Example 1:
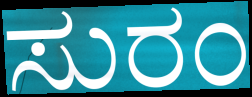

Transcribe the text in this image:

ಸುರಂ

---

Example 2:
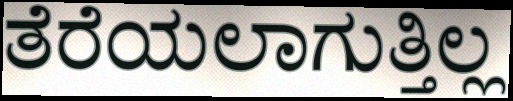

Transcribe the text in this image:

ತೆರೆಯಲಾಗುತ್ತಿಲ್ಲ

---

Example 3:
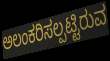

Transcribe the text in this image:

ಅಲಂಕರಿಸಲ್ಪಟ್ಟಿರುವ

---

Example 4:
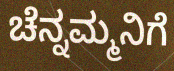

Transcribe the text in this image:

ಚೆನ್ನಮ್ಮನಿಗೆ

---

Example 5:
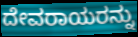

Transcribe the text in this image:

ದೇವರಾಯರನ್ನು